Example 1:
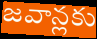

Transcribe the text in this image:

జవాన్లకు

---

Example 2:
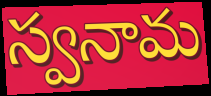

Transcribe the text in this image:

స్వనామ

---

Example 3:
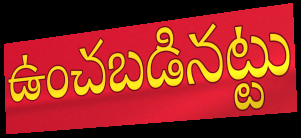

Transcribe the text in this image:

ఉంచబడినట్టు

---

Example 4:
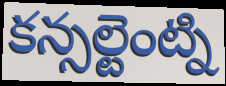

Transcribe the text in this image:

కన్సల్టెంట్ని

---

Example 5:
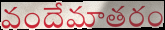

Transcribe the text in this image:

వందేమాతరం